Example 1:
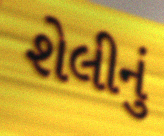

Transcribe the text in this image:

શેલીનું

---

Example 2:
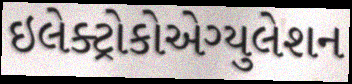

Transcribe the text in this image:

ઇલેક્ટ્રોકોએગ્યુલેશન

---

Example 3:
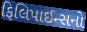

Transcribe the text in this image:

ફિલિપાઈન્સનો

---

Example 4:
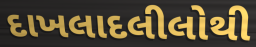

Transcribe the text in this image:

દાખલાદલીલોથી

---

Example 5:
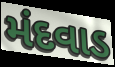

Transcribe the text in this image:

મંદવાડ